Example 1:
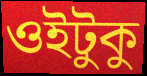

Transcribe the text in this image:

ওইটুকু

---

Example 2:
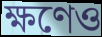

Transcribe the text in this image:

ক্ষণেও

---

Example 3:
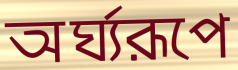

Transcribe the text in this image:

অর্ঘ্যরূপে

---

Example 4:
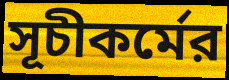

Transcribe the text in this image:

সূচীকর্মের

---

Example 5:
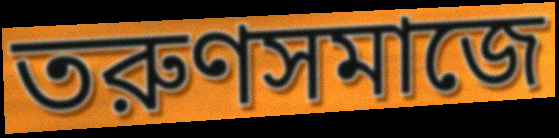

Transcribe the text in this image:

তরুণসমাজে